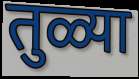
तुळ्या